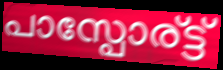
പാസ്പോര്ട്ട്